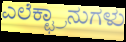
ಎಲೆಕ್ಟ್ರಾನುಗಳು